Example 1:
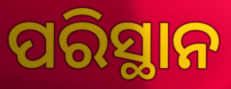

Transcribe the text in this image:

ପରିସ୍ଥାନ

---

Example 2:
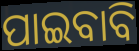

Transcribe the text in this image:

ପାଇବାବି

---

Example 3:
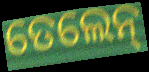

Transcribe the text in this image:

ତେଲେନ୍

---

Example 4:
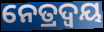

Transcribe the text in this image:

ନେତ୍ରଦ୍ଵୟ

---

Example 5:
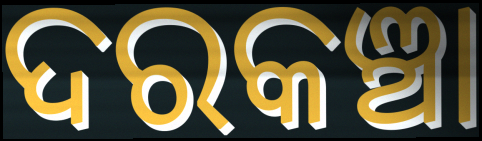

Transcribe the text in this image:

ଦରକଞ୍ଚା